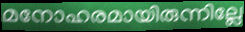
മനോഹരമായിരുന്നില്ലേ